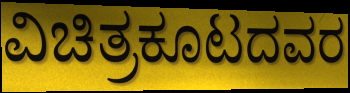
ವಿಚಿತ್ರಕೂಟದವರ